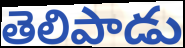
తెలిపాడు